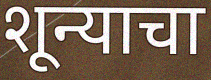
शून्याचा